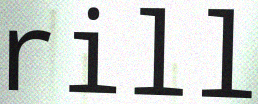
rill